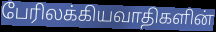
பேரிலக்கியவாதிகளின்